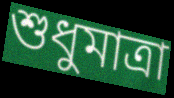
শুধুমাত্রা